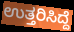
ಉತ್ತರಿಸಿದ್ದೆ